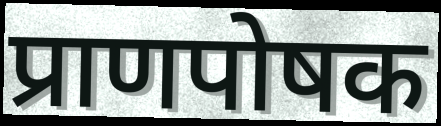
प्राणपोषक